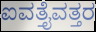
ಐವತ್ತೈವತ್ತರ